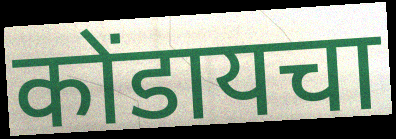
कोंडायचा